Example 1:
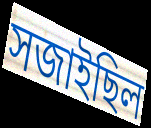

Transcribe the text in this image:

সজাইছিল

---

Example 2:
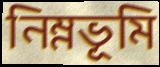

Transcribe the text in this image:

নিম্নভূমি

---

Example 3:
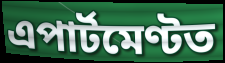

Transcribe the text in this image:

এপাৰ্টমেণ্টত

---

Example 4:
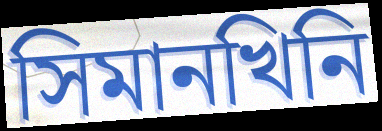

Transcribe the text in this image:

সিমানখিনি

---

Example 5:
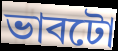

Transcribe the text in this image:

ভাবটো